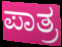
ಪಾತ್ರ